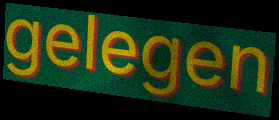
gelegen